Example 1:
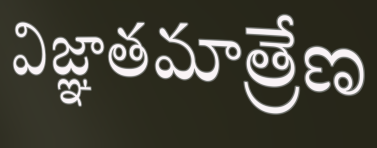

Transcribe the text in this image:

విజ్ఞాతమాత్రేణ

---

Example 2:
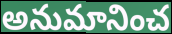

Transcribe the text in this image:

అనుమానించ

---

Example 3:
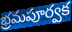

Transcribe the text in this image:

భ్రమపూర్వక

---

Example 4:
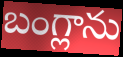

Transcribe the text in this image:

బంగ్లాను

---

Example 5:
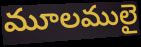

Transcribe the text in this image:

మూలములై